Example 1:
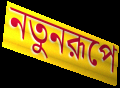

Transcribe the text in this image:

নতুনরূপে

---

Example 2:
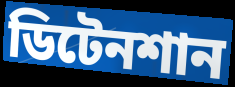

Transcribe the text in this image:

ডিটেনশান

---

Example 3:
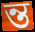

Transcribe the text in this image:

ন্ত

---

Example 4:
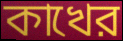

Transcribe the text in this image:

কাখের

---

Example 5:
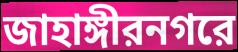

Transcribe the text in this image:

জাহাঙ্গীরনগরে